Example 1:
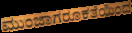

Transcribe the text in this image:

ಮುಂಜಾಗರೂಕತೆಯಿಂದ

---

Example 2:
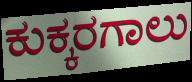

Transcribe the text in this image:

ಕುಕ್ಕರಗಾಲು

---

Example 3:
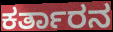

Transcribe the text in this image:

ಕರ್ತಾರನ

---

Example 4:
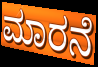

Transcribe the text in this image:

ಮಾರನೆ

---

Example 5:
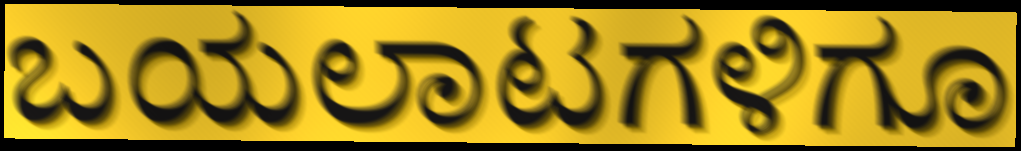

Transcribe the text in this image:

ಬಯಲಾಟಗಳಿಗೂ